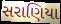
સરાણિયા